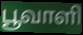
பூவாளி